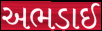
અભડાઈ